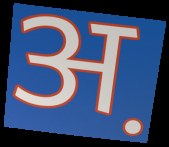
अ़